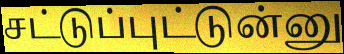
சட்டுப்புட்டுன்னு